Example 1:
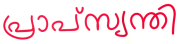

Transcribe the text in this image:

പ്രാപ്സ്യന്തി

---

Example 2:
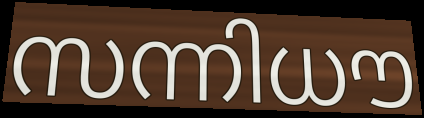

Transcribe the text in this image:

സന്നിധൗ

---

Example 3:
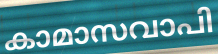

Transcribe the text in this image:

കാമാസവാപി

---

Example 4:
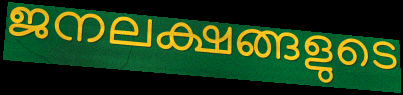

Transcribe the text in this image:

ജനലക്ഷങ്ങളുടെ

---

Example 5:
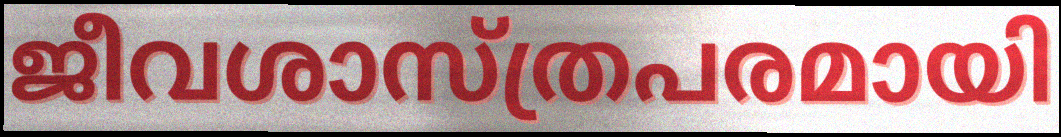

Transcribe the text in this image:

ജീവശാസ്ത്രപരമായി